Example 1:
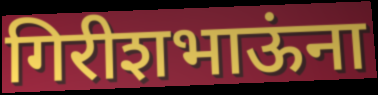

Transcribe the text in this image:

गिरीशभाऊंना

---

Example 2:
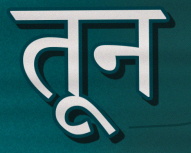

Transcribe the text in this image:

तून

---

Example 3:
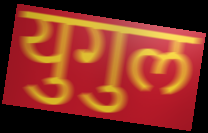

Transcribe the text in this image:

युगुल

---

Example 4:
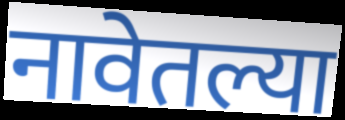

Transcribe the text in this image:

नावेतल्या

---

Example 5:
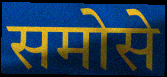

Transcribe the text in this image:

समोसे